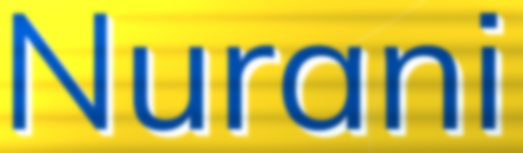
Nurani